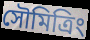
সৌমিত্রিং